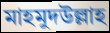
মাহমুদউল্লাহ